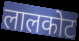
लालकोट